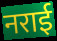
नराई